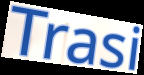
Trasi